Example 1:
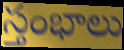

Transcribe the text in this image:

స్తంభాలు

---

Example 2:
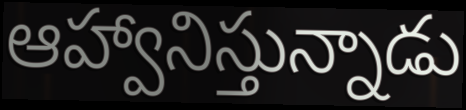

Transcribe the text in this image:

ఆహ్వానిస్తున్నాడు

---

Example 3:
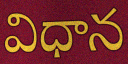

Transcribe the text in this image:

విధాన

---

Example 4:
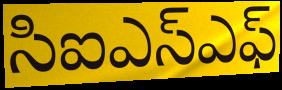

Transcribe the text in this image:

సిఐఎస్ఎఫ్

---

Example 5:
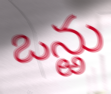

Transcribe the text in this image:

ఒన్ఱు